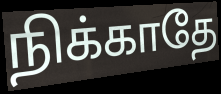
நிக்காதே